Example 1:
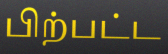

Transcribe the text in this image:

பிற்பட்ட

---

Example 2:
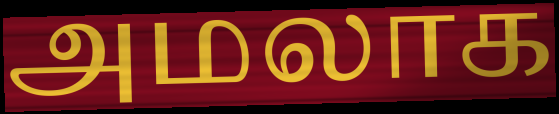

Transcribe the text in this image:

அமலாக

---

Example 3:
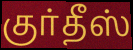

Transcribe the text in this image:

குர்தீஸ்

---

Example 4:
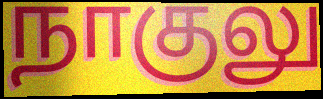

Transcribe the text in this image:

நாகுலு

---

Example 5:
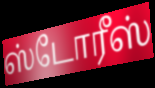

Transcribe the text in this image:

ஸ்டோரீஸ்